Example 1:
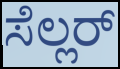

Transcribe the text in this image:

ಸೆಲ್ಲರ್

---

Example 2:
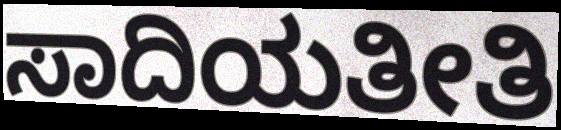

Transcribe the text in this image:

ಸಾದಿಯತೀತಿ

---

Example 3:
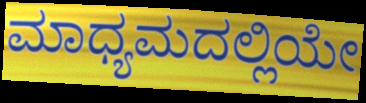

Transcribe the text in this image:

ಮಾಧ್ಯಮದಲ್ಲಿಯೇ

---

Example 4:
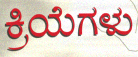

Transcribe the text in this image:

ಕ್ರಿಯೆಗಳು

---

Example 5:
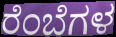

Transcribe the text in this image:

ರೆಂಬೆಗಳ